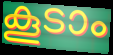
കൂടാം